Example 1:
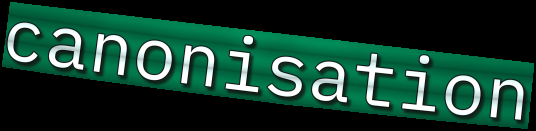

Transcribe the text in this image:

canonisation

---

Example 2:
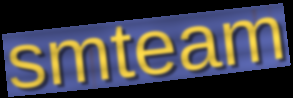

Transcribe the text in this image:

smteam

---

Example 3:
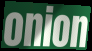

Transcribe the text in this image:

onion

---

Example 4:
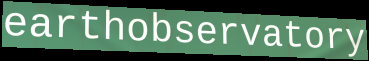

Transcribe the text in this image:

earthobservatory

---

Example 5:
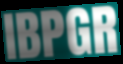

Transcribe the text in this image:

IBPGR